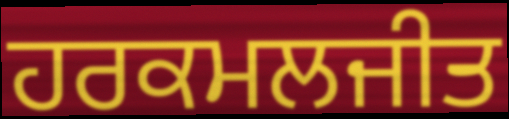
ਹਰਕਮਲਜੀਤ